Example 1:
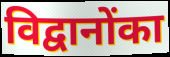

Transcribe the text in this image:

विद्वानोंका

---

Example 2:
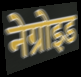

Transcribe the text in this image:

नेग्रोइड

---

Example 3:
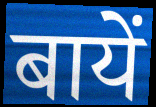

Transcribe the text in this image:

बायें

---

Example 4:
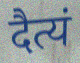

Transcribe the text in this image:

दैत्यं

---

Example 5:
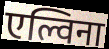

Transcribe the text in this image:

एल्विना